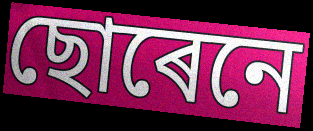
ছোৰেনে